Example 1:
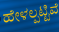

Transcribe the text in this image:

ಹೇಳಲ್ಪಟ್ಟಿವೆ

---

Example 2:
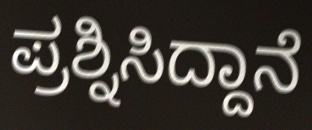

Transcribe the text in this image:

ಪ್ರಶ್ನಿಸಿದ್ದಾನೆ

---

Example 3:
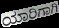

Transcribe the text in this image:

ಯಾರಿಗಾಗಿ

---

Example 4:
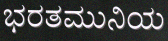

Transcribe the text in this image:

ಭರತಮುನಿಯ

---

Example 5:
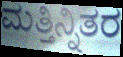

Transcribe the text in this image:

ಮತ್ತಿನ್ನಿತರ